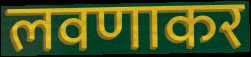
लवणाकर